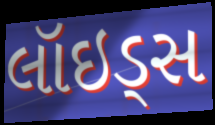
લૉઇડ્સ